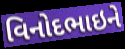
વિનોદભાઇને